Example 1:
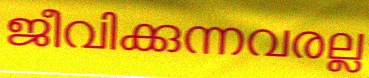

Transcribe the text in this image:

ജീവിക്കുന്നവരല്ല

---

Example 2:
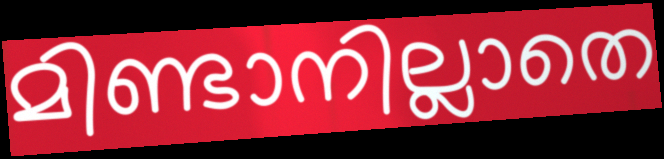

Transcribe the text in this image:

മിണ്ടാനില്ലാതെ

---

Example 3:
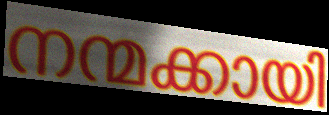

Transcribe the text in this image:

നന്മക്കായി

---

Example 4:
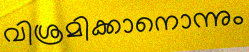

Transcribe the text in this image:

വിശ്രമിക്കാനൊന്നും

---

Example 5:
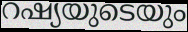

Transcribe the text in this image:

റഷ്യയുടെയും